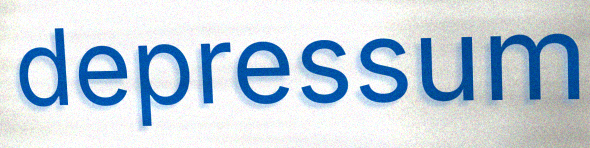
depressum